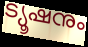
ട്യൂഷനും